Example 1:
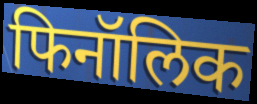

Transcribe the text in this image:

फिनॉलिक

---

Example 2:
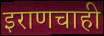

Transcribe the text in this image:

इराणचाही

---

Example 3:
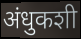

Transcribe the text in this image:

अंधुकशी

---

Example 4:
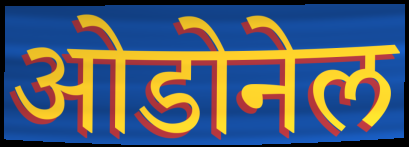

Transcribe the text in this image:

ओडोनेल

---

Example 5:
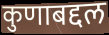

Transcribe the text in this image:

कुणाबद्दल